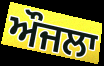
ਔਜਲਾ